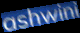
ashwini